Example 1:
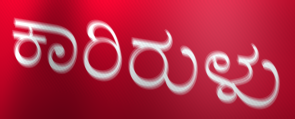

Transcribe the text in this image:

ಕಾರಿರುಳು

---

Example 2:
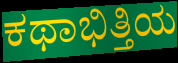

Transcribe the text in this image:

ಕಥಾಭಿತ್ತಿಯ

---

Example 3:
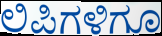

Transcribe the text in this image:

ಲಿಪಿಗಳಿಗೂ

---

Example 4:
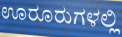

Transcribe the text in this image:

ಊರೂರುಗಳಲ್ಲಿ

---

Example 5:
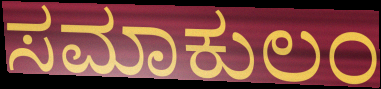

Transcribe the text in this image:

ಸಮಾಕುಲಂ